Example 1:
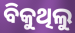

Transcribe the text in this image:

ବିକୁଥିଲୁ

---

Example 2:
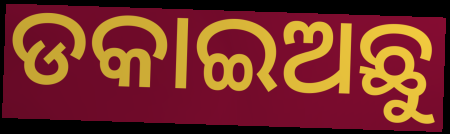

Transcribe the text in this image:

ଡକାଇଅଛୁ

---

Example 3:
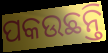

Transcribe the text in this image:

ପକଉଛନ୍ତି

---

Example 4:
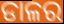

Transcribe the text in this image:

ଡାଳର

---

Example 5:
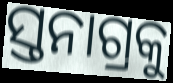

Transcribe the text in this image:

ସ୍ତନାଗ୍ରକୁ